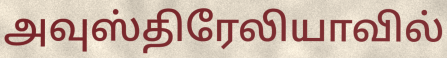
அவுஸ்திரேலியாவில்